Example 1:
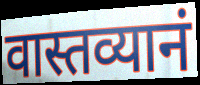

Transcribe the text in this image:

वास्तव्यानं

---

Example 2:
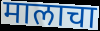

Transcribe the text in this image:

मालाचा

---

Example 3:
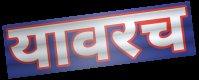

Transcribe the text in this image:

यावरच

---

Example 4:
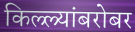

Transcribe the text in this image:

किल्ल्यांबरोबर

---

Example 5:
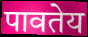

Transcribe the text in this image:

पावतेय